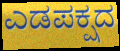
ಎಡಪಕ್ಷದ